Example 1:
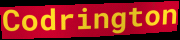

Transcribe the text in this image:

Codrington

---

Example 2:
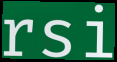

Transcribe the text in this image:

rsi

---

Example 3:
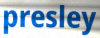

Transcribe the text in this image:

presley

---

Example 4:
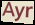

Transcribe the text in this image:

Ayr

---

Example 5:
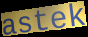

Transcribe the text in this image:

astek